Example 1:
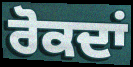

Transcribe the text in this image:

ਰੋਕਦਾਂ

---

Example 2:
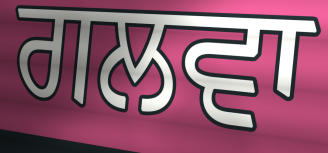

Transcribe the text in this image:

ਗਲਵਾ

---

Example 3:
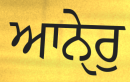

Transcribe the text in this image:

ਆਨੇੑਰੁ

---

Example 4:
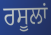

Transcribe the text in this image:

ਰਸੂਲਾਂ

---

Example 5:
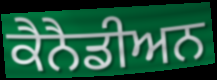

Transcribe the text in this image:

ਕੈਨੈਡੀਅਨ